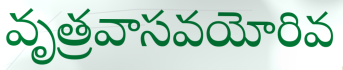
వృత్రవాసవయోరివ